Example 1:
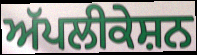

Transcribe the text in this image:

ਅੱਪਲੀਕੇਸ਼ਨ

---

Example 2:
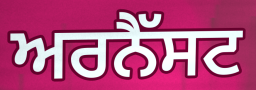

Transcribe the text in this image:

ਅਰਨੈੱਸਟ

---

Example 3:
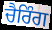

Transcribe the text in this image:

ਚੈਰਿੰਗ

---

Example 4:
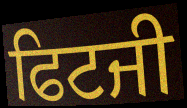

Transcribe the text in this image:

ਫਿਟਜੀ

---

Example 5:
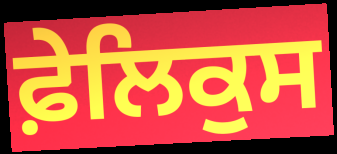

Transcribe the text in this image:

ਫ਼ੇਲਿਕੁਸ